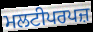
ਮਲਟੀਪਰਪਜ਼